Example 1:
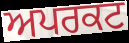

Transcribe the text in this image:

ਅਪਰਕਟ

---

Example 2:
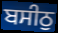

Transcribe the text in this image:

ਬਸੀਠੁ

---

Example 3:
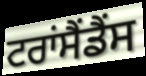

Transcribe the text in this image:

ਟਰਾਂਸੈਂਡੈਂਸ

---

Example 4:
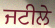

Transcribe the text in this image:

ਜਟੀਲੇ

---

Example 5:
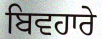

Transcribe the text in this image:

ਬਿਵਹਾਰੇ